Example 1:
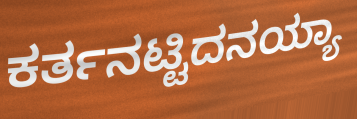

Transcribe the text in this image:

ಕರ್ತನಟ್ಟಿದನಯ್ಯಾ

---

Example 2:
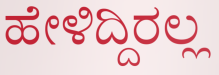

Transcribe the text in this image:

ಹೇಳಿದ್ದಿರಲ್ಲ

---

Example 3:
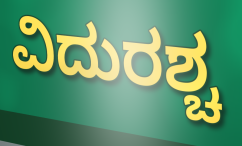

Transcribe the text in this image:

ವಿದುರಶ್ಚ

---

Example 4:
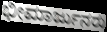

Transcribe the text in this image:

ಭೀಮಾರ್ಜುನರು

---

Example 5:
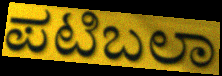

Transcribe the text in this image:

ಪಟಿಬಲಾ